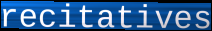
recitatives